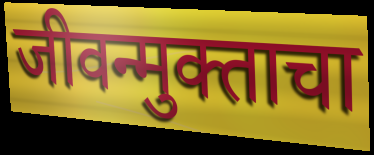
जीवन्मुक्ताचा